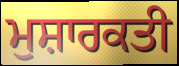
ਮੁਸ਼ਾਰਕਤੀ